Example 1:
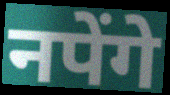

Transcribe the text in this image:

नपेंगे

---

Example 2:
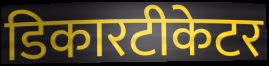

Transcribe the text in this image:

डिकारटीकेटर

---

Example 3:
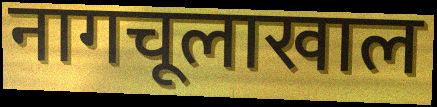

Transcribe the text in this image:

नागचूलाखाल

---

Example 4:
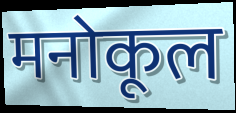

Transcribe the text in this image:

मनोकूल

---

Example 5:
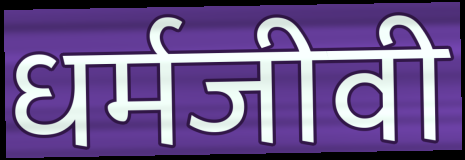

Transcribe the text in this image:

धर्मजीवी